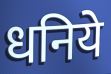
धनिये